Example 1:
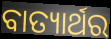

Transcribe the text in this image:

ବାତ୍ୟାର୍ଥର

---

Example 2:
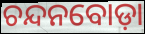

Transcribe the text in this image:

ଚନ୍ଦନବୋଡ଼ା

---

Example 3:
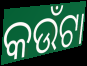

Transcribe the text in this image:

କଉଁଟା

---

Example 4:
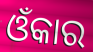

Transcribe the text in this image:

ଓଁକାର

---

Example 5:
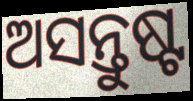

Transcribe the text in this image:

ଅସନ୍ତୁଷ୍ଟ